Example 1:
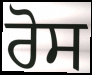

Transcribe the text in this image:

ਰੋਸ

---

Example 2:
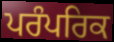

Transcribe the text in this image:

ਪਰੰਪਰਿਕ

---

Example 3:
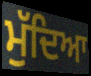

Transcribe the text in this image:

ਮੁੱਦਿਆ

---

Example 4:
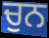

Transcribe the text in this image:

ਚੁਨ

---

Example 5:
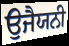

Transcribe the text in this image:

ਉਜੈਯਨੀ